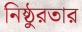
নিষ্ঠুরতার